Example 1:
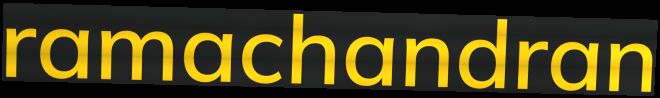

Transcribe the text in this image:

ramachandran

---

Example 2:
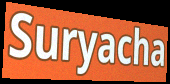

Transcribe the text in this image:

Suryacha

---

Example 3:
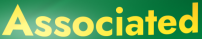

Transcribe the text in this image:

Associated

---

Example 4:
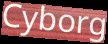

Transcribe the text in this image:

Cyborg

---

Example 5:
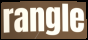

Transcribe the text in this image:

rangle